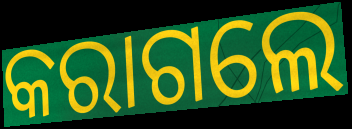
କରାଗଲେ